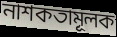
নাশকতামূলক